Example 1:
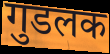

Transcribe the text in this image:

गुडलक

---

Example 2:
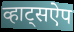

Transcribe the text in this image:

व्हाट्सऐप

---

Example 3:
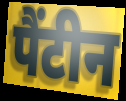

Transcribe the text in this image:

पैंटीन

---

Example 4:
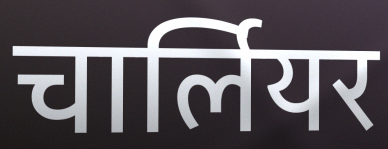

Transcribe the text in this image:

चार्लियर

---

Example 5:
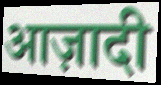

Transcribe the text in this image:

आज़ादी